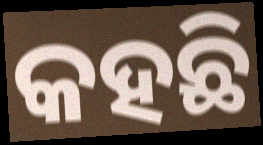
କହଛି